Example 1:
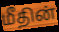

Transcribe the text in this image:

மீதின்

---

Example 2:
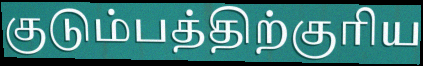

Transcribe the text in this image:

குடும்பத்திற்குரிய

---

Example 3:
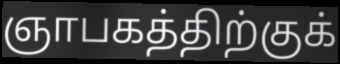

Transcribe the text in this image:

ஞாபகத்திற்குக்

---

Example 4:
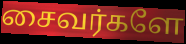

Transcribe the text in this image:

சைவர்களே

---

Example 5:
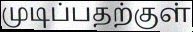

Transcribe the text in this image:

முடிப்பதற்குள்